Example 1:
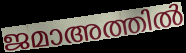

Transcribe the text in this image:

ജമാഅത്തിൽ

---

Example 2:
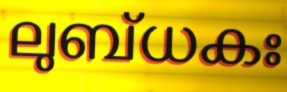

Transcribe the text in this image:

ലുബ്ധകഃ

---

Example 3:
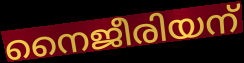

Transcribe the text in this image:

നൈജീരിയന്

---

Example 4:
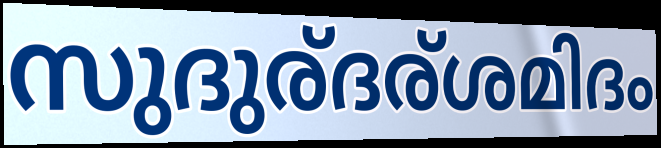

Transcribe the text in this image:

സുദുര്ദര്ശമിദം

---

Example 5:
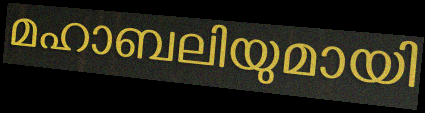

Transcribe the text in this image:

മഹാബലിയുമായി